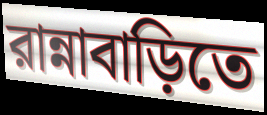
রান্নাবাড়িতে